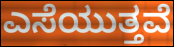
ಎಸೆಯುತ್ತವೆ